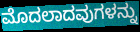
ಮೊದಲಾದವುಗಳನ್ನು